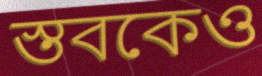
স্তবকেও